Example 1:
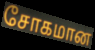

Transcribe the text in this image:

சோகமான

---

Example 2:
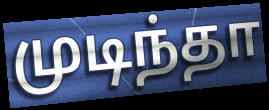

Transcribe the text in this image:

முடிந்தா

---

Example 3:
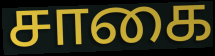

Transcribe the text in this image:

சாகை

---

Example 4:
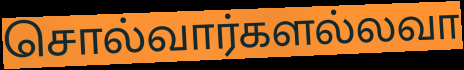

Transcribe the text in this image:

சொல்வார்களல்லவா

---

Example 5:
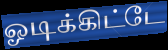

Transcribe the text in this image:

ஓடிக்கிட்டே